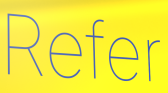
Refer